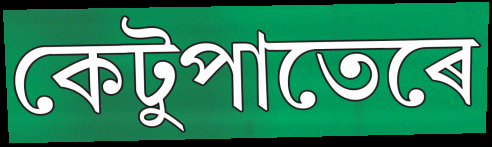
কেটুপাতেৰে